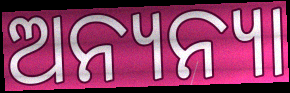
ଅନ୍ୟନ୍ୟା